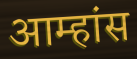
आम्हांस